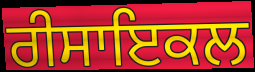
ਰੀਸਾਇਕਲ